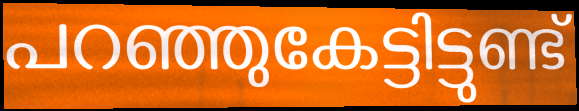
പറഞ്ഞുകേട്ടിട്ടുണ്ട്